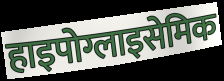
हाइपोग्लाइसेमिक